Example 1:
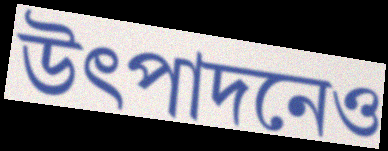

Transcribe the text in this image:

উৎপাদনেও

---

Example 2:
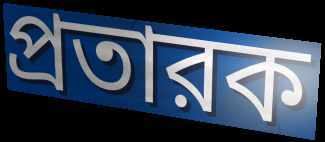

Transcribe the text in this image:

প্রতারক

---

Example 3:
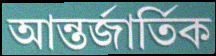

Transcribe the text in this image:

আন্তর্জার্তিক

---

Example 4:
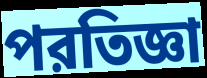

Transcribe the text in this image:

পরতিজ্ঞা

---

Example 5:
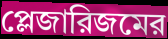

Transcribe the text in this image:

প্লেজারিজমের